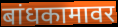
बांधकामावर